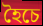
হৈচে